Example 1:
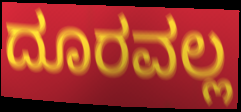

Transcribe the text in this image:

ದೂರವಲ್ಲ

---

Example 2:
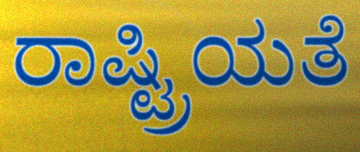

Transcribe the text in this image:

ರಾಷ್ಟ್ರಿಯತೆ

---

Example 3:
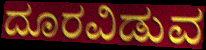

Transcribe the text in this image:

ದೂರವಿಡುವ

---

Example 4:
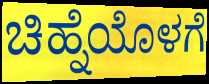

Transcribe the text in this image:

ಚಿಹ್ನೆಯೊಳಗೆ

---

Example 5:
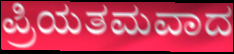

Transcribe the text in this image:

ಪ್ರಿಯತಮವಾದ